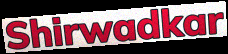
Shirwadkar